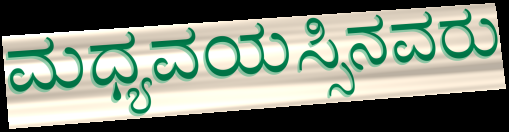
ಮಧ್ಯವಯಸ್ಸಿನವರು